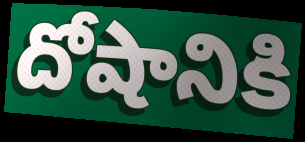
దోషానికి